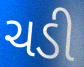
ચડી